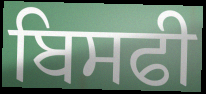
ਬਿਸਫੀ